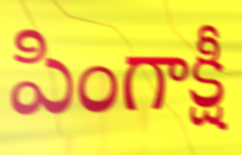
పింగాక్షీ